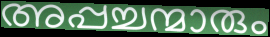
അപ്പച്ചന്മാരും